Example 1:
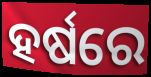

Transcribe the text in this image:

ହର୍ଷରେ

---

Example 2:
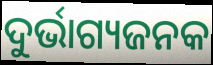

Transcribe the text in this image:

ଦୁର୍ଭାଗ୍ୟଜନକ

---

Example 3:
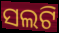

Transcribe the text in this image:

ସଲଟି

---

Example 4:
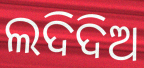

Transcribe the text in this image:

ଲଦିଦିଅ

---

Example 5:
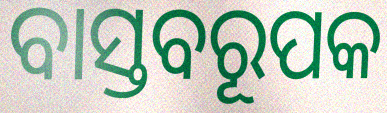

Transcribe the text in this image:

ବାସ୍ତବରୂପକ